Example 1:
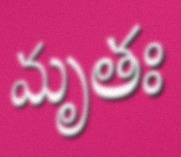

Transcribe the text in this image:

మృతః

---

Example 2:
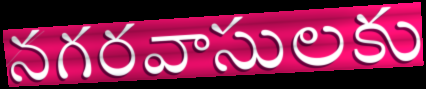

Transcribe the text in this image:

నగరవాసులకు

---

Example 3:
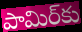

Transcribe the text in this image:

పామిర్‌కు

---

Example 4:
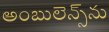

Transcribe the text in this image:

అంబులెన్స్‌ను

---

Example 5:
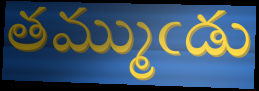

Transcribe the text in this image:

తమ్ముఁడు